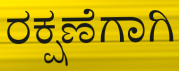
ರಕ್ಷಣೆಗಾಗಿ